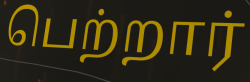
பெற்றார்